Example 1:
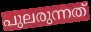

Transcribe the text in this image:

പുലരുന്നത്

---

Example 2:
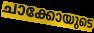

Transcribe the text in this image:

ചാക്കോയുടെ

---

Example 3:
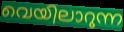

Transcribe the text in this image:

വെയിലാറുന്ന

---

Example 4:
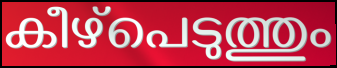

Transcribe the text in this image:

കീഴ്പെടുത്തും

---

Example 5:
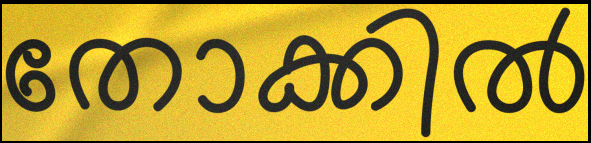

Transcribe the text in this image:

തോക്കിൽ